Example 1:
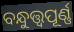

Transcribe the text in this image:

ବନ୍ଧୁତ୍ତ୍ୱପୂର୍ଣ୍ଣ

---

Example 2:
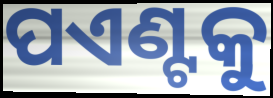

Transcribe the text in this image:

ପଏଣ୍ଟକୁ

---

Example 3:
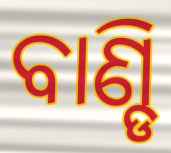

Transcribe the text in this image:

ବାଣ୍ଡି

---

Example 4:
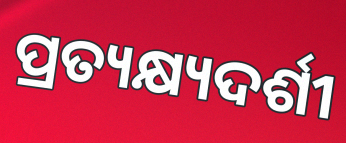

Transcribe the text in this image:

ପ୍ରତ୍ୟକ୍ଷ୍ୟଦର୍ଶୀ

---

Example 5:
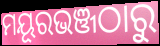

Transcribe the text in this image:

ମୟୂରଭଞ୍ଜଠାରୁ